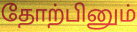
தோற்பினும்